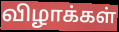
விழாக்கள்